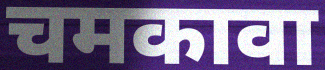
चमकावा